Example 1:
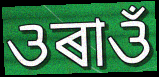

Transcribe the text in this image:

ওৰাওঁ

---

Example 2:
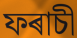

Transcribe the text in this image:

ফৰাচী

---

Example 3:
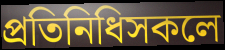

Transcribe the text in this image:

প্ৰতিনিধিসকলে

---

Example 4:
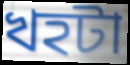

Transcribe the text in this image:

খহটা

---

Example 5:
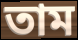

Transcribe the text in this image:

তাম